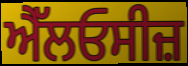
ਐੱਲਓਸੀਜ਼